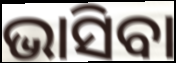
ଭାସିବା